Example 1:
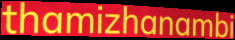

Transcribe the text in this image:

thamizhanambi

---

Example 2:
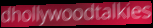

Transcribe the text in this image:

dhollywoodtalkies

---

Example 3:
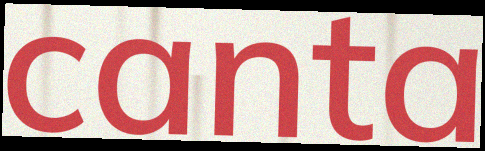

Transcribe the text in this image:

canta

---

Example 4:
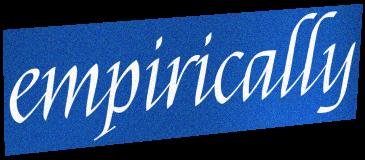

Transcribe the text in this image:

empirically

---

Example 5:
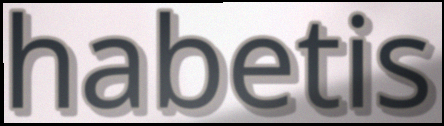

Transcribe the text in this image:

habetis